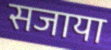
सजाया